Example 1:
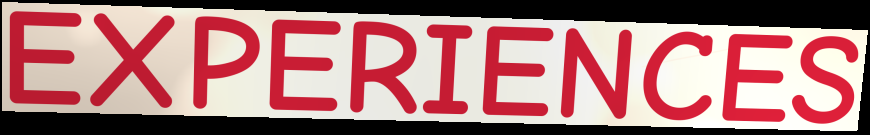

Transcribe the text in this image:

EXPERIENCES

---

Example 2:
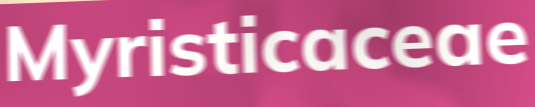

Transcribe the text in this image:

Myristicaceae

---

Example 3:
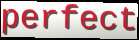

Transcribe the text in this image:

perfect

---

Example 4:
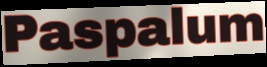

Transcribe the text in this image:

Paspalum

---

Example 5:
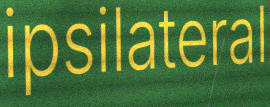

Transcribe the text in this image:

ipsilateral